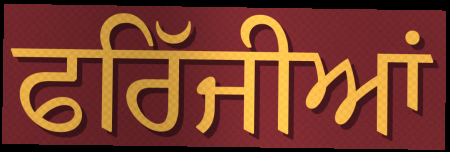
ਫਰਿੱਜੀਆਂ